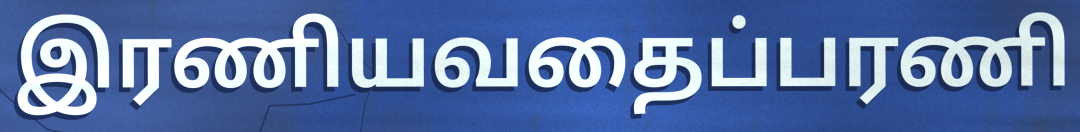
இரணியவதைப்பரணி